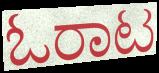
ಓರಾಟ